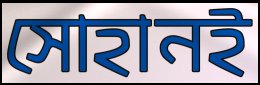
সোহানই